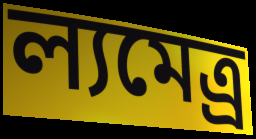
ল্যমেত্র্র